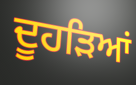
ਦੂਹੜਿਆਂ